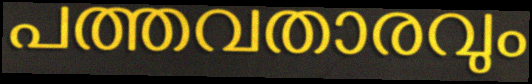
പത്തവതാരവും